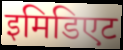
इमिडिएट